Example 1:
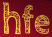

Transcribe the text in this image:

hfe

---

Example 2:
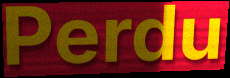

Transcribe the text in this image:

Perdu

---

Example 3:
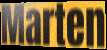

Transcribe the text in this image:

Marten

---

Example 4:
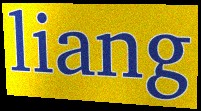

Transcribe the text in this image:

liang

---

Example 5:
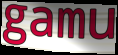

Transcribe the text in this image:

gamu